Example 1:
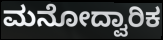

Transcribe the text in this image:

ಮನೋದ್ವಾರಿಕ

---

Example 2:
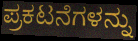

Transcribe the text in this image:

ಪ್ರಕಟನೆಗಳನ್ನು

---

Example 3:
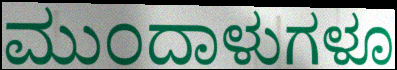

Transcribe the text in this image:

ಮುಂದಾಳುಗಳೂ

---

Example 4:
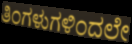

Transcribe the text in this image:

ತಿಂಗಳುಗಳಿಂದಲೇ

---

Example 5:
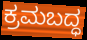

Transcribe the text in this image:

ಕ್ರಮಬದ್ಧ